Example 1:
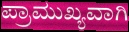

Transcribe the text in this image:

ಪ್ರಾಮುಖ್ಯವಾಗಿ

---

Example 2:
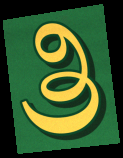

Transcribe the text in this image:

ತಿ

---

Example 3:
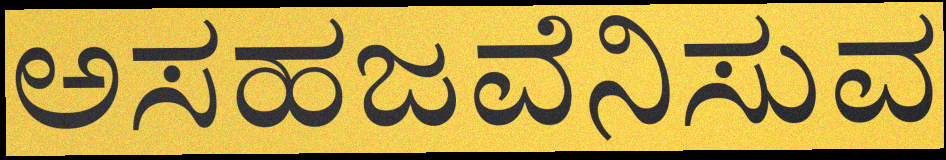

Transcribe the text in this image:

ಅಸಹಜವೆನಿಸುವ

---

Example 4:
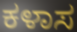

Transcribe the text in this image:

ಕಳಾಸ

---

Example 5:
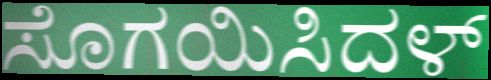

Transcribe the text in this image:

ಸೊಗಯಿಸಿದಳ್